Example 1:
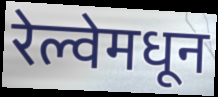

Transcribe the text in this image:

रेल्वेमधून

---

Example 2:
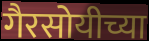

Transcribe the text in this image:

गैरसोयीच्या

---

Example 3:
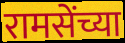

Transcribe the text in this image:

रामसेंच्या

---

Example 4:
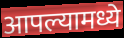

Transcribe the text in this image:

आपल्यामध्ये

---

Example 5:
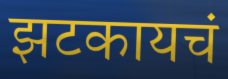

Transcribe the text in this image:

झटकायचं